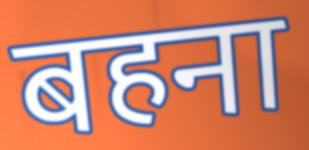
बहना